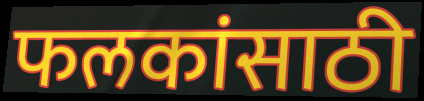
फलकांसाठी